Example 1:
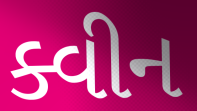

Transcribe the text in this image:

ક્વીન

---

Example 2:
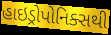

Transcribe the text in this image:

હાઇડ્રોપોનિક્સથી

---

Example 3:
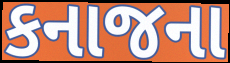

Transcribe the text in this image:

કનાજના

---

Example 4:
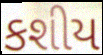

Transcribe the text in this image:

કશીય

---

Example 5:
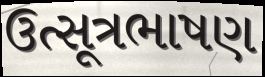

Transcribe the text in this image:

ઉત્સૂત્રભાષણ